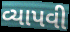
વ્યાપવી